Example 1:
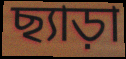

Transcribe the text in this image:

ছ্যাড়া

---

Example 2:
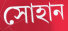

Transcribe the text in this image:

সোহান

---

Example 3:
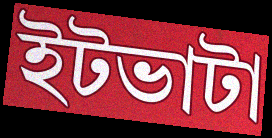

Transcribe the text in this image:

ইটভাটা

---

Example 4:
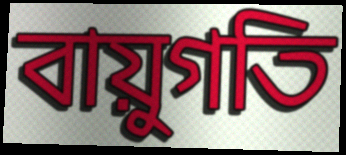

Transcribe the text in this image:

বায়ুগতি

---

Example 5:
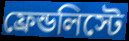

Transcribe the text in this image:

ফ্রেন্ডলিস্টে